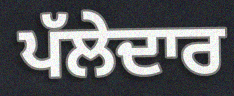
ਪੱਲੇਦਾਰ